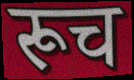
रूच